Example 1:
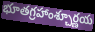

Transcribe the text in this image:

భూతగ్రహాంశ్చూర్ణయ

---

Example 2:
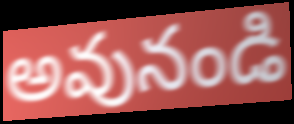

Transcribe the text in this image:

అవునండి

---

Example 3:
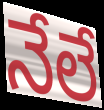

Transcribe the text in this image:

నేలే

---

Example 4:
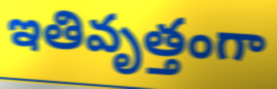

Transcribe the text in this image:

ఇతివృత్తంగా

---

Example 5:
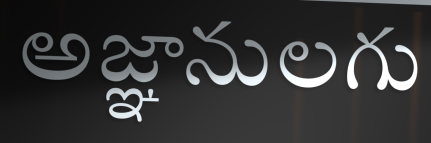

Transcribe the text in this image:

అజ్ఞానులగు